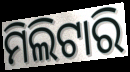
ମିଲିଟାରି